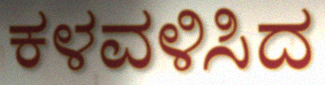
ಕಳವಳಿಸಿದ